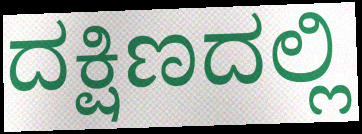
ದಕ್ಷಿಣದಲ್ಲಿ